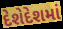
દેશેદેશમાં